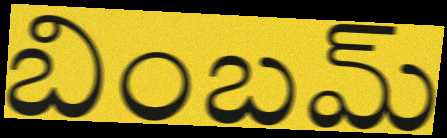
బింబమ్